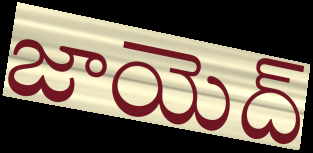
జాయెద్